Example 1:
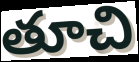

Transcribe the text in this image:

తూచి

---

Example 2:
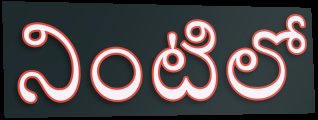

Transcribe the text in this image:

నింటిలో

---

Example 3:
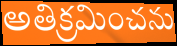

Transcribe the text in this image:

అతిక్రమించను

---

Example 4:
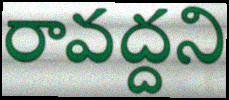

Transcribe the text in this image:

రావద్దని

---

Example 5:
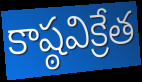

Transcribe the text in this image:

కాష్ఠవిక్రేత